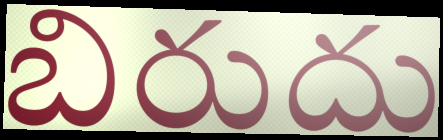
బిరుదు